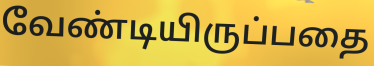
வேண்டியிருப்பதை